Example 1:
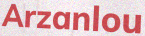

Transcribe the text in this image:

Arzanlou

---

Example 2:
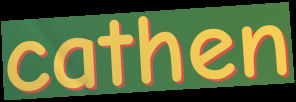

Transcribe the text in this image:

cathen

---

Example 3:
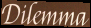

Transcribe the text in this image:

Dilemma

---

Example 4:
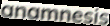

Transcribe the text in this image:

anamnesis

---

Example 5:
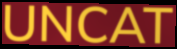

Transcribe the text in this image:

UNCAT